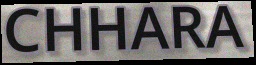
CHHARA